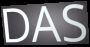
DAS